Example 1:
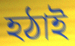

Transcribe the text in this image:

হঠাই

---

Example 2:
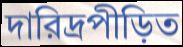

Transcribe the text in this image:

দারিদ্রপীড়িত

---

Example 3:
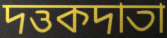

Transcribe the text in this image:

দত্তকদাতা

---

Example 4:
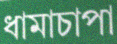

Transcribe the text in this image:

ধামাচাপা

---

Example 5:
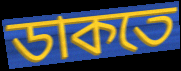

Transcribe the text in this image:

ডাকতে